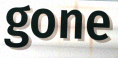
gone